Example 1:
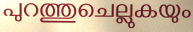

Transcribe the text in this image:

പുറത്തുചെല്ലുകയും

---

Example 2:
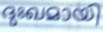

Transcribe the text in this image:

ദുഃഖമായി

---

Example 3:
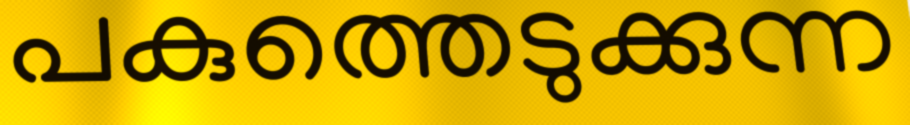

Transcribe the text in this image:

പകുത്തെടുക്കുന്ന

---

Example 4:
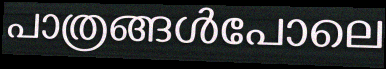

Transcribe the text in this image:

പാത്രങ്ങൾപോലെ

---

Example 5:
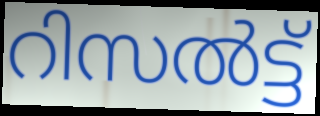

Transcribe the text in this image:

റിസൽട്ട്